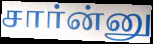
சார்ன்னு